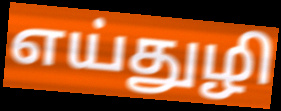
எய்துழி